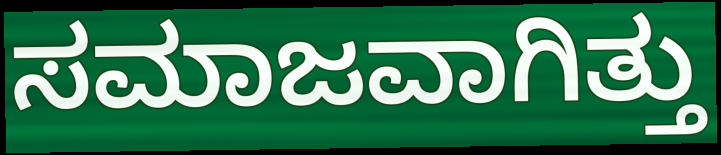
ಸಮಾಜವಾಗಿತ್ತು